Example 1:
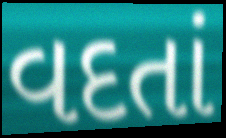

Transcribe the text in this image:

વદતાં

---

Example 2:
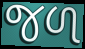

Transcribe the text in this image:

જળ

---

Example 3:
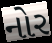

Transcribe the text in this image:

નોર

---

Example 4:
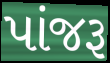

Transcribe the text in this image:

પાંજરૂ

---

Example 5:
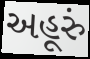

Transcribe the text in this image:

અહૂરું